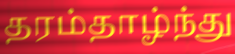
தரம்தாழ்ந்து